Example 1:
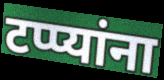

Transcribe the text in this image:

टप्प्यांना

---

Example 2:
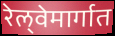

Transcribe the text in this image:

रेल्वेमार्गात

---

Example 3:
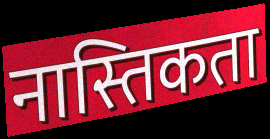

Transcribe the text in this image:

नास्तिकता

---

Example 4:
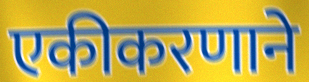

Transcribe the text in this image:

एकीकरणाने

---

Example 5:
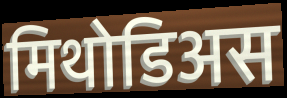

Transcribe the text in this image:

मिथोडिअस